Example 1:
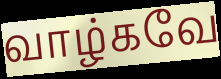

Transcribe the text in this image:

வாழ்கவே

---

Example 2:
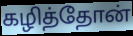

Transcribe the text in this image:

கழித்தோன்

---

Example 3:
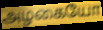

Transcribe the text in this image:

அழகையோ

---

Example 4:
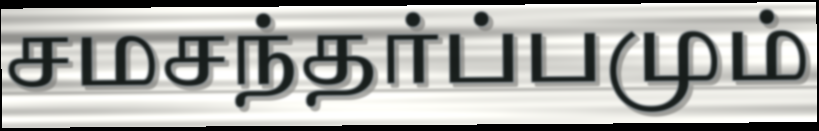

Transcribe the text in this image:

சமசந்தர்ப்பமும்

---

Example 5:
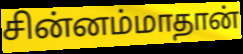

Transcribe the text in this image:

சின்னம்மாதான்